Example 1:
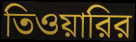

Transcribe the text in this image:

তিওয়ারির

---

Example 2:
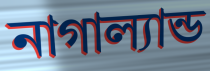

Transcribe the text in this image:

নাগাল্যান্ড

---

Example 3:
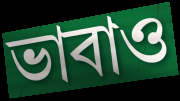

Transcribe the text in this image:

ভাবাও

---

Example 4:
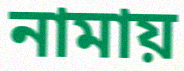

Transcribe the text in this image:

নামায়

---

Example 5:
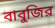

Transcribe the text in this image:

বাবুজির